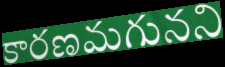
కారణమగునని